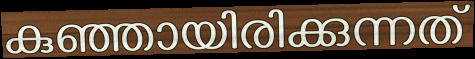
കുഞ്ഞായിരിക്കുന്നത്